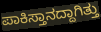
ಪಾಕಿಸ್ತಾನದ್ದಾಗಿತ್ತು